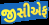
જીસીએફ